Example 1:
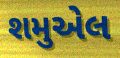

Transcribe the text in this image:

શમુએલ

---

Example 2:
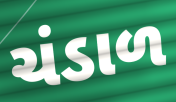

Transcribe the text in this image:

ચંડાળ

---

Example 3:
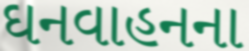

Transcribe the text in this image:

ઘનવાહનના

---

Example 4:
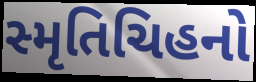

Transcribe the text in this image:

સ્મૃતિચિહનો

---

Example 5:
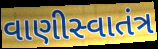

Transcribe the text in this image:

વાણીસ્વાતંત્ર